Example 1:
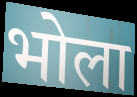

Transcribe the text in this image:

भोला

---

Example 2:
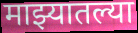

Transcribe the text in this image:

माझ्यातल्या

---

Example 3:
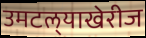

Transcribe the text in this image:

उमटल्याखेरीज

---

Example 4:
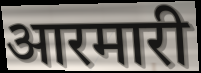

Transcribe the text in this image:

आरमारी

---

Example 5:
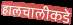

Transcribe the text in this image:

हालचालीकडे